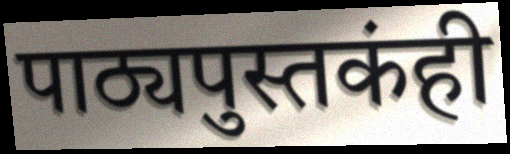
पाठ्यपुस्तकंही